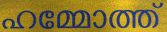
ഹമ്മോത്ത്